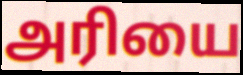
அரியை